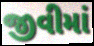
જીવીમાં